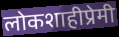
लोकशाहीप्रेमी